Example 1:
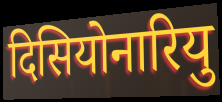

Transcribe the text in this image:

दिसियोनारियु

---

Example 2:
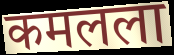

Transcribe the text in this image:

कमलला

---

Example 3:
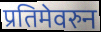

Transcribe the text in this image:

प्रतिमेवरुन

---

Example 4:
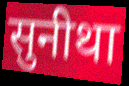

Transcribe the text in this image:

सुनीथा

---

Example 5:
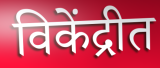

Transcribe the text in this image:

विकेंद्रीत